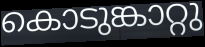
കൊടുങ്കാറ്റു